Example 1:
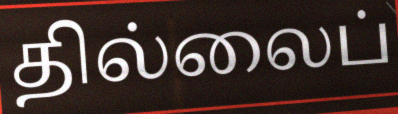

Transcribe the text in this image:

தில்லைப்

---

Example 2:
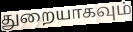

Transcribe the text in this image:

துறையாகவும்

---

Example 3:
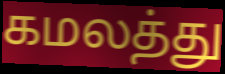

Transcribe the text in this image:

கமலத்து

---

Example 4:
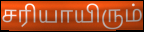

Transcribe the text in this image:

சரியாயிரும்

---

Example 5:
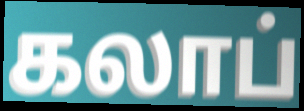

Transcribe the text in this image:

கலாப்